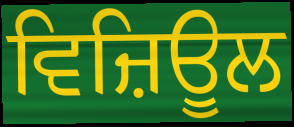
ਵਿਜ਼ਿਊਲ